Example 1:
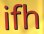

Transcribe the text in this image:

ifh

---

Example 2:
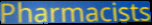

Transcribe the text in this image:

Pharmacists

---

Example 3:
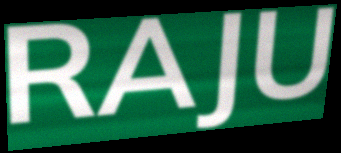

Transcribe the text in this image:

RAJU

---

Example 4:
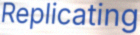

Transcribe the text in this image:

Replicating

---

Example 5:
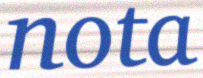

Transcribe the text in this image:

nota